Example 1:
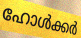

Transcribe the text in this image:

ഹോൾക്കർ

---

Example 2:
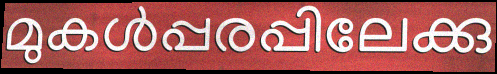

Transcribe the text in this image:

മുകൾപ്പരപ്പിലേക്കു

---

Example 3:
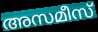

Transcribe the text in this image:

അസമീസ്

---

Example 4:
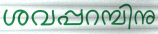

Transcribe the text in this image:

ശവപ്പറമ്പിനു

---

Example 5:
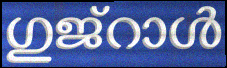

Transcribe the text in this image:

ഗുജ്റാൾ